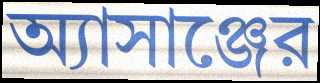
অ্যাসাঞ্জের